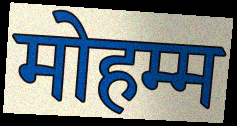
मोहम्म